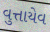
વુત્તાયેવ